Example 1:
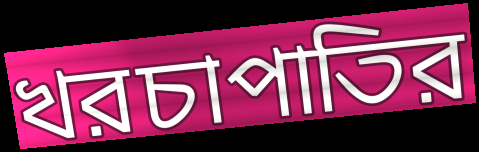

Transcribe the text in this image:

খরচাপাতির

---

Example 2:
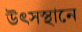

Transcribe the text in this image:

উৎসস্থানে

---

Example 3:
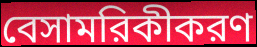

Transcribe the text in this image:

বেসামরিকীকরণ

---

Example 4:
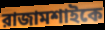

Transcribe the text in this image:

রাজামশাইকে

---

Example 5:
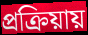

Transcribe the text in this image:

প্রক্রিয়ায়